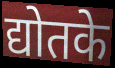
द्योतके